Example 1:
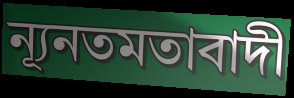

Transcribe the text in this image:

ন্যূনতমতাবাদী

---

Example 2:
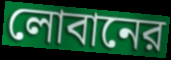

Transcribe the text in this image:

লোবানের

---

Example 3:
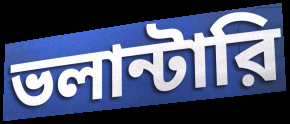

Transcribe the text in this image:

ভলান্টারি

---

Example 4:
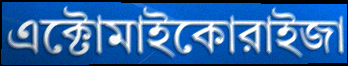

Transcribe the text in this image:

এক্টোমাইকোরাইজা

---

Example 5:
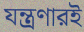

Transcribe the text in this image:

যন্ত্রণারই